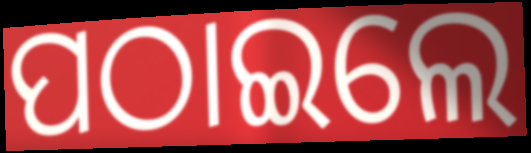
ପଠାଇଲେ